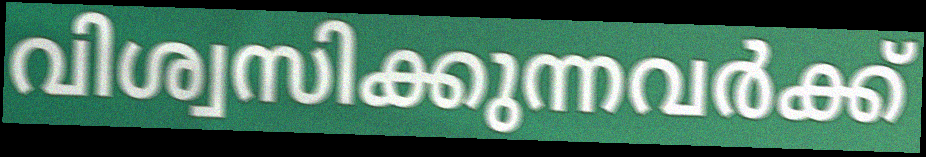
വിശ്വസിക്കുന്നവർക്ക്